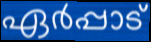
ഏർപ്പാട്